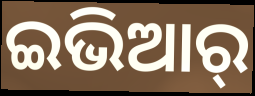
ଇଭିଆର୍